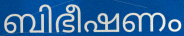
ബിഭീഷണം